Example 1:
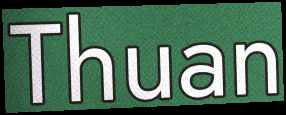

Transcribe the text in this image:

Thuan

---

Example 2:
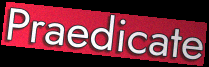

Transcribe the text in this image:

Praedicate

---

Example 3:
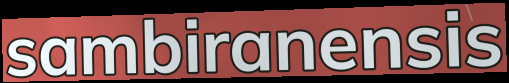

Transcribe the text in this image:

sambiranensis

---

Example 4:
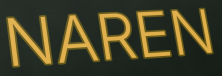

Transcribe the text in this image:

NAREN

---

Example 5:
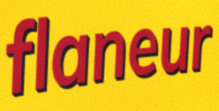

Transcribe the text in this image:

flaneur